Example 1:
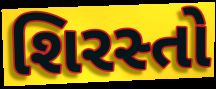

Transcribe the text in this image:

શિરસ્તો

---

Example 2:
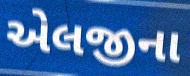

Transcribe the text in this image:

એલજીના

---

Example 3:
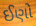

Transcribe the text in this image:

ઈણો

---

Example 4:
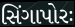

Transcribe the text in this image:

સિંગાપોરઃ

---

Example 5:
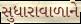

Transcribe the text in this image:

સુધારાવાળાને